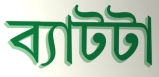
ব্যাটটা